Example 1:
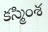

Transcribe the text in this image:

కస్మింశ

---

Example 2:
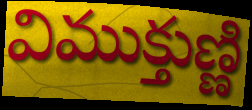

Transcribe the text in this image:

విముక్తుణ్ణి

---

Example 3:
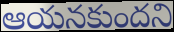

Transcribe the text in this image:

ఆయనకుందని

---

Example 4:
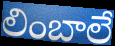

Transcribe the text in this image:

లింబాలే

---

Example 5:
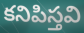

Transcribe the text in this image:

కనిపిస్తవి